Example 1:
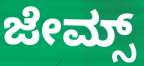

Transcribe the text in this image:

ಜೇಮ್ಸ್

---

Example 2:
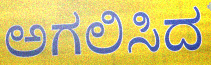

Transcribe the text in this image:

ಅಗಲಿಸಿದ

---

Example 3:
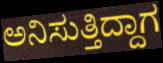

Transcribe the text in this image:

ಅನಿಸುತ್ತಿದ್ದಾಗ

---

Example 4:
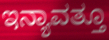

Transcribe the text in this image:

ಇನ್ಯಾವತ್ತೂ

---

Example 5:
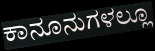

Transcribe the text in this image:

ಕಾನೂನುಗಳಲ್ಲೂ